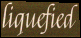
liquefied